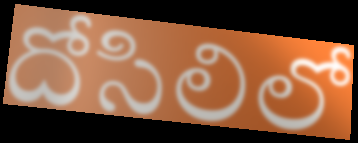
దోసిలిలో